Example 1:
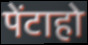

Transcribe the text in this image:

पेंटाहो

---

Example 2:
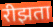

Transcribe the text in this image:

रीझता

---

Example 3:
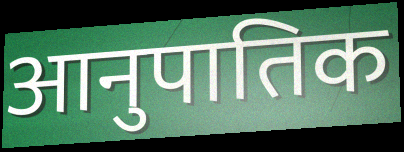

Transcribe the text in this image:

आनुपातिक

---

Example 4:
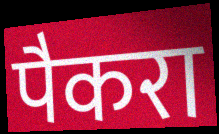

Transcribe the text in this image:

पैकरा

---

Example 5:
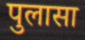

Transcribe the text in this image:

पुलासा